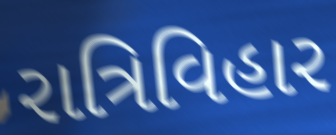
રાત્રિવિહાર